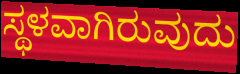
ಸ್ಥಳವಾಗಿರುವುದು